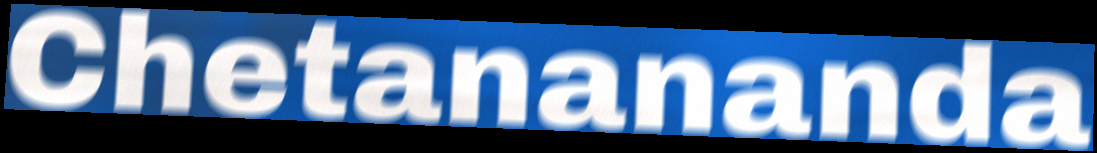
Chetanananda